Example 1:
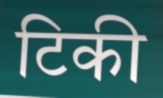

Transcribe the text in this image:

टिकी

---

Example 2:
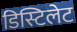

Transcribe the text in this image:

डिस्टिलेट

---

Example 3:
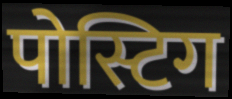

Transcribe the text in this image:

पोस्टिग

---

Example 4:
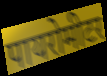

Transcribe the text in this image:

पायरोमीटर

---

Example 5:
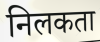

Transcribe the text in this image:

निलकता